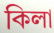
কিলা